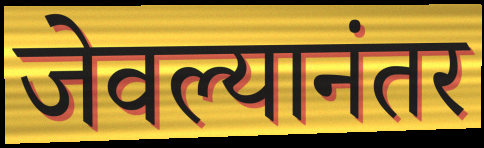
जेवल्यानंतर